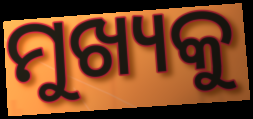
ମୁଖ୍ୟକୁ